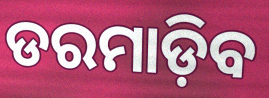
ଡରମାଡ଼ିବ